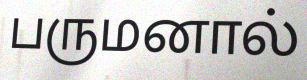
பருமனால்